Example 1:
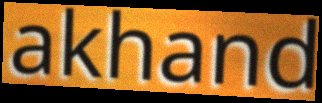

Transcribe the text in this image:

akhand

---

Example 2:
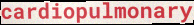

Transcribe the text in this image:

cardiopulmonary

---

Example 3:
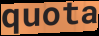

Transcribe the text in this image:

quota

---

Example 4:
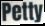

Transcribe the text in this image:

Petty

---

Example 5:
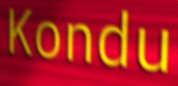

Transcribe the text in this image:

Kondu